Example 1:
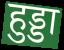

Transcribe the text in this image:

हुड्डा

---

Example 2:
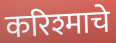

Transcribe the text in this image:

करिश्माचे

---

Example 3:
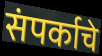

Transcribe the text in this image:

संपर्काचे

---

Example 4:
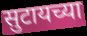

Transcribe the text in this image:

सुटायच्या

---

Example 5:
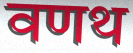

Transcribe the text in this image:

वणथ